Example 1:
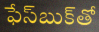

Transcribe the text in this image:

ఫేస్‌బుక్‌తో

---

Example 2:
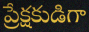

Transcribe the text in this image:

ప్రేక్షకుడిగా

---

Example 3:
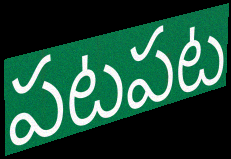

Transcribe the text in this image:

పటపట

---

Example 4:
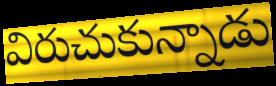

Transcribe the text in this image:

విరుచుకున్నాడు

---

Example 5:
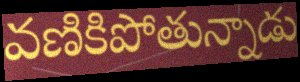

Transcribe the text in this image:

వణికిపోతున్నాడు